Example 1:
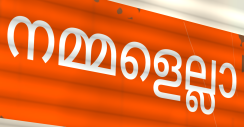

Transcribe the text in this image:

നമ്മളെല്ലാ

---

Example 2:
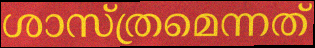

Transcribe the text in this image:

ശാസ്ത്രമെന്നത്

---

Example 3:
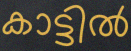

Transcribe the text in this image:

കാട്ടിൽ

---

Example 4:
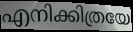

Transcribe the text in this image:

എനിക്കിത്രയേ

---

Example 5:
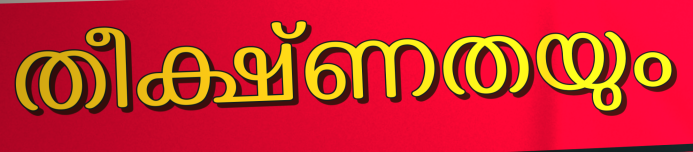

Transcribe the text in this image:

തീക്ഷ്‌ണതയും